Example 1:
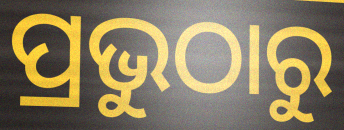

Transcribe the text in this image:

ପ୍ରଭୁଠାରୁ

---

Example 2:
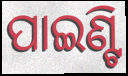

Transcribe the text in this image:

ପାଇଣ୍ଟି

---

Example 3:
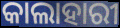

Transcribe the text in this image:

କାଲାହାରୀ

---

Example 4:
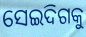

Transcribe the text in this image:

ସେଇଦିଗକୁ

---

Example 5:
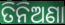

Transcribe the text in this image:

ତିନିଅଣା